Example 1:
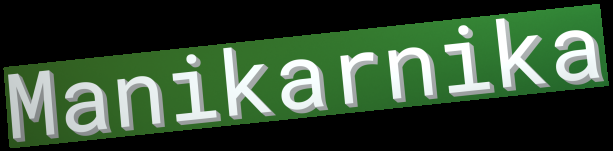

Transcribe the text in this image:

Manikarnika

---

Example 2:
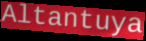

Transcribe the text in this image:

Altantuya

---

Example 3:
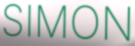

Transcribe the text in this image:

SIMON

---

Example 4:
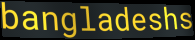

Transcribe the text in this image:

bangladeshs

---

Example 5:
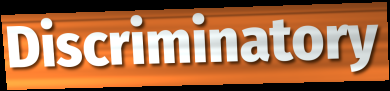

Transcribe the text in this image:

Discriminatory